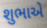
શુભાએ